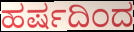
ಹರ್ಷದಿಂದ